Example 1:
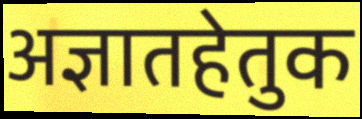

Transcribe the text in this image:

अज्ञातहेतुक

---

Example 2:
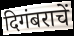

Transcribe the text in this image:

दिगंबराचें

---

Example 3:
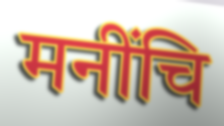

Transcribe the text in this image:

मनींचि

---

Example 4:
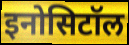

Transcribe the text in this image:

इनोसिटॉल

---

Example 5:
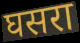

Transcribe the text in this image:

घसरा